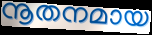
നൂതനമായ